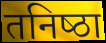
तनिष्‍ठा